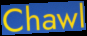
Chawl